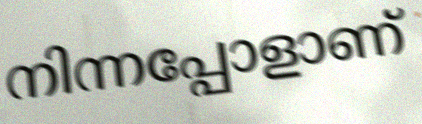
നിന്നപ്പോളാണ്